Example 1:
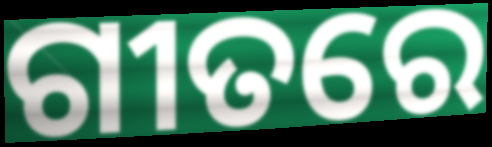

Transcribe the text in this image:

ଗୀତରେ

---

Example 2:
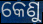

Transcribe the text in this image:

କେଣୁ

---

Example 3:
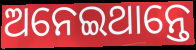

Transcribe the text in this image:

ଅନେଇଥାନ୍ତେ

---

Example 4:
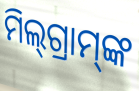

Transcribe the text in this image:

ମିଲ୍‌ଗ୍ରାମ୍‌ଙ୍କ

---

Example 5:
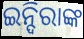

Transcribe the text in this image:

ଇନ୍ଦିରାଙ୍କ